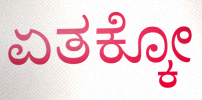
ಏತಕ್ಕೋ